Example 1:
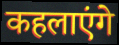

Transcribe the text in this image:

कहलाएंगे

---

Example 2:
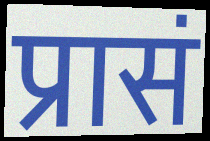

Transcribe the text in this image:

प्रासं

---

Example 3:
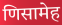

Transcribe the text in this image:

णिसामेह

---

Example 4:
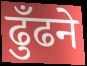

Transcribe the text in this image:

ढुँढने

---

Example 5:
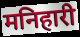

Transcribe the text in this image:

मनिहारी